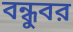
বন্ধুবর